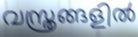
വസ്ത്രങ്ങളിൽ